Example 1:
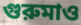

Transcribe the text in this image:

গুরুমাও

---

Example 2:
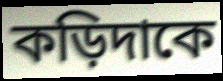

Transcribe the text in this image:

কড়িদাকে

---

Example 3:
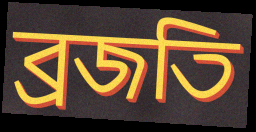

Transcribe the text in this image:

ব্রজতি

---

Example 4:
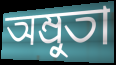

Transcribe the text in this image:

অম্রুতা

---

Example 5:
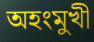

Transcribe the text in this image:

অহংমুখী